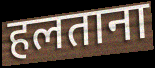
हलताना